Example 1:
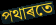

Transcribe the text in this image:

পথাৰতে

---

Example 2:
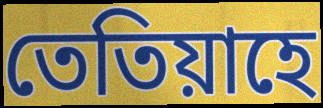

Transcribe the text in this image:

তেতিয়াহে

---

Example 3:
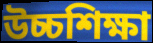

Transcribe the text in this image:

উচ্চশিক্ষা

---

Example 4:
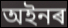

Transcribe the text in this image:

অইনৰ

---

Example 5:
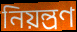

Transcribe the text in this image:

নিয়ন্ত্ৰণ